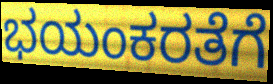
ಭಯಂಕರತೆಗೆ